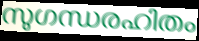
സുഗന്ധരഹിതം